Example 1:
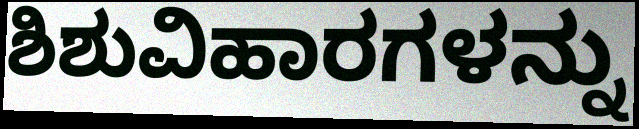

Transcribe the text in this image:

ಶಿಶುವಿಹಾರಗಳನ್ನು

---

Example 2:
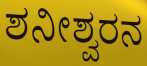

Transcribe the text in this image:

ಶನೀಶ್ವರನ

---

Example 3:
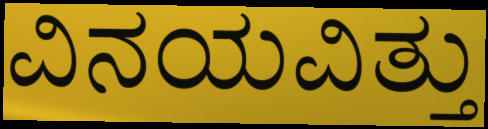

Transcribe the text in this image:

ವಿನಯವಿತ್ತು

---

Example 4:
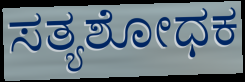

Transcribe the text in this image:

ಸತ್ಯಶೋಧಕ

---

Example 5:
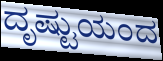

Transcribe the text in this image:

ದೃಷ್ಟುಯಂದ